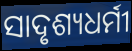
ସାଦୃଶ୍ୟଧର୍ମୀ